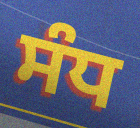
ਸੰਧ